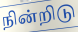
நின்றிடு